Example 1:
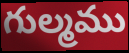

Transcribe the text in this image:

గుల్మము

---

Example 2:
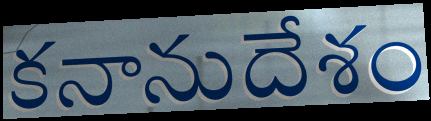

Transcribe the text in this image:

కనానుదేశం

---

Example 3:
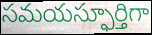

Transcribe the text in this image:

సమయస్ఫూర్తిగా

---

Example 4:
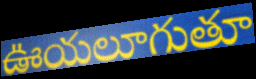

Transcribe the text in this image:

ఊయలూగుతూ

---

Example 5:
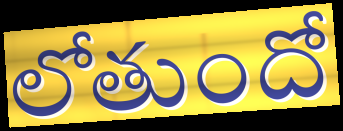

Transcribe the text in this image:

లోతుందో